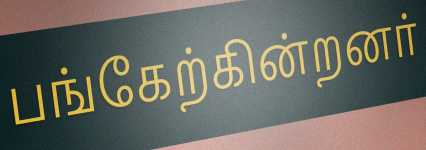
பங்கேற்கின்றனர்